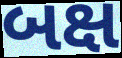
બક્ષ